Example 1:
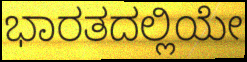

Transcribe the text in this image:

ಭಾರತದಲ್ಲಿಯೇ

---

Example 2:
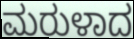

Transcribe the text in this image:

ಮರುಳಾದ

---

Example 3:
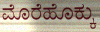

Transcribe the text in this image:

ಮೊರೆಹೊಕ್ಕು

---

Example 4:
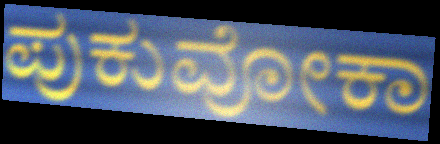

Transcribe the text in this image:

ಪುಕುವೋಕಾ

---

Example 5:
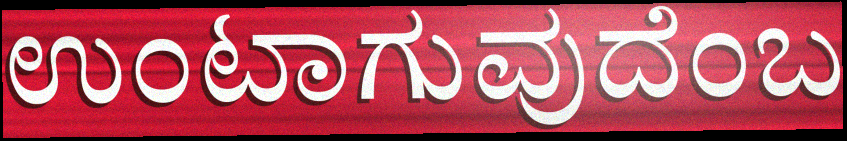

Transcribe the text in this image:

ಉಂಟಾಗುವುದೆಂಬ